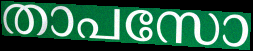
താപസോ